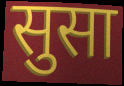
सुसा